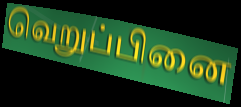
வெறுப்பினை